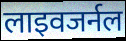
लाइवजर्नल